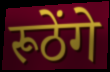
रूठेंगे